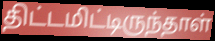
திட்டமிட்டிருந்தாள்